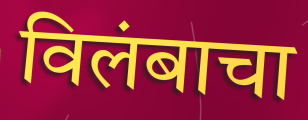
विलंबाचा